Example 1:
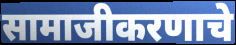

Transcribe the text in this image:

सामाजीकरणाचे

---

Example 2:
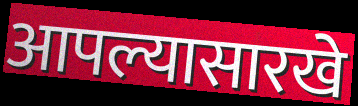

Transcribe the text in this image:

आपल्यासारखे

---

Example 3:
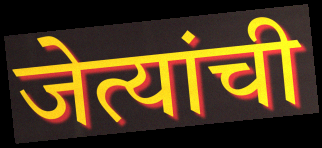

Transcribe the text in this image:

जेत्यांची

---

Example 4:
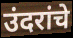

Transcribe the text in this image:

उंदरांचे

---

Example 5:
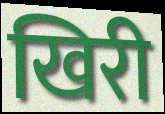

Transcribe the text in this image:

खिरी